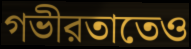
গভীরতাতেও